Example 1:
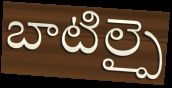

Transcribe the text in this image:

బాటిల్పై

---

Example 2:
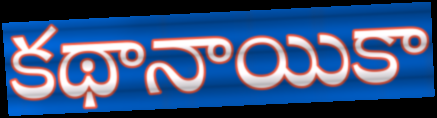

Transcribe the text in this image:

కథానాయికా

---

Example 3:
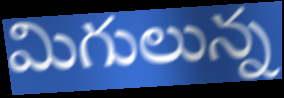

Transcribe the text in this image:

మిగులున్న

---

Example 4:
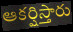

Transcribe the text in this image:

ఆకర్షిస్తారు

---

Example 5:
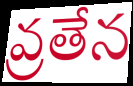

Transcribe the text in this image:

వ్రతేన